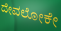
ದೇವಲೋಕೇ